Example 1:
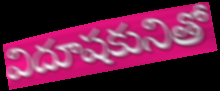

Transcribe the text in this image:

విదూషకునితో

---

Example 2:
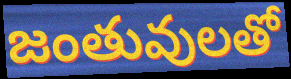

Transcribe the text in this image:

జంతువులతో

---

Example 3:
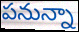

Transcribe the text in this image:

పనున్నా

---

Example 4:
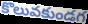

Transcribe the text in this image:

కొలువకుండగ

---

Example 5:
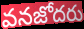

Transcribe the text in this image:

వనజోదరు